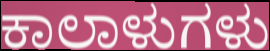
ಕಾಲಾಳುಗಳು